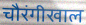
चौरंगीखाल